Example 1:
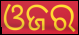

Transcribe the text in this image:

ଓଜର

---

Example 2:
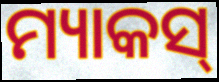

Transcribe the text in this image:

ମ୍ୟାକସ୍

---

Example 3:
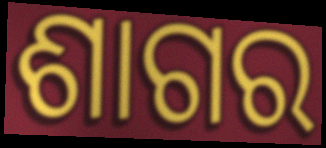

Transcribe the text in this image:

ଶାଗର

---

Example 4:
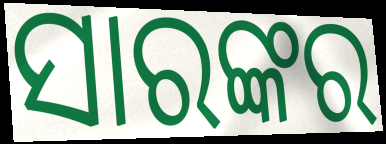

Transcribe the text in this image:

ସାରଙ୍କର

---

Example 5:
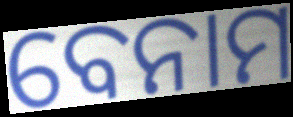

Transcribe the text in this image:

ବେନାମ